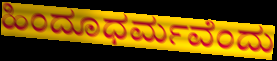
ಹಿಂದೂಧರ್ಮವೆಂದು